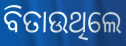
ବିତାଉଥିଲେ